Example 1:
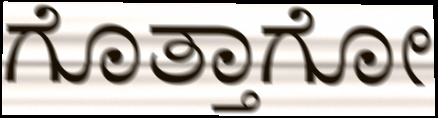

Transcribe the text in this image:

ಗೊತ್ತಾಗೋ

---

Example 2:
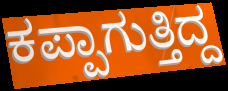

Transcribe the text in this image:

ಕಪ್ಪಾಗುತ್ತಿದ್ದ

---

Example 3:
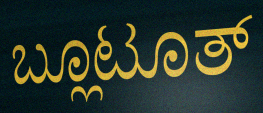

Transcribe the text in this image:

ಬ್ಲೂಟೂತ್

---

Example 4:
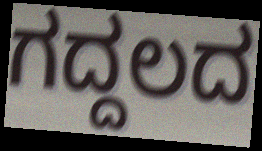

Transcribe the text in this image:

ಗದ್ದಲದ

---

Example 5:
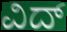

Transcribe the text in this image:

ವಿದ್